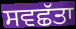
ਸਵਛੱਤਾ